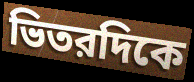
ভিতরদিকে